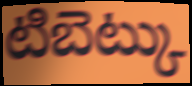
టిబెట్కు